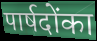
पार्षदोंका